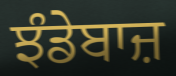
ਝੰਡੇਬਾਜ਼